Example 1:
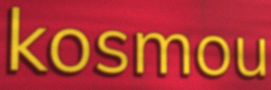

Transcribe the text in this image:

kosmou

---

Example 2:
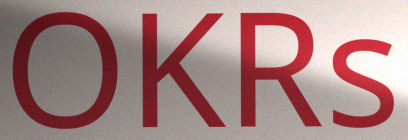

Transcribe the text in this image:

OKRs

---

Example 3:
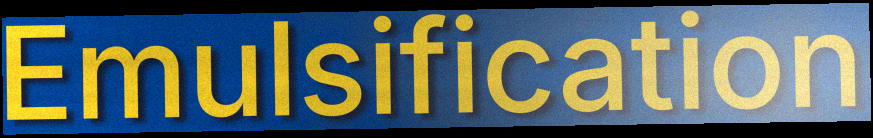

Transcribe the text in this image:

Emulsification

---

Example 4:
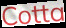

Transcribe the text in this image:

Cotta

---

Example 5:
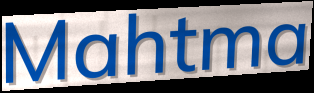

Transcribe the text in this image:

Mahtma